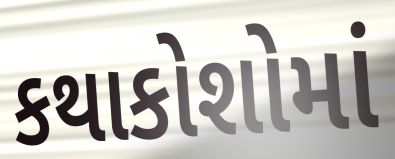
કથાકોશોમાં